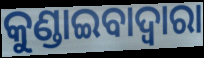
କୁଣ୍ଡାଇବାଦ୍ୱାରା